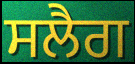
ਸਲੈਗ